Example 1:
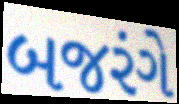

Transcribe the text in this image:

બજરંગે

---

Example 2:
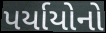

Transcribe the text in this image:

પર્યાયોનો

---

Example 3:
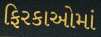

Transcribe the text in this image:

ફિરકાઓમાં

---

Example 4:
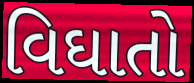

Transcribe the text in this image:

વિઘાતો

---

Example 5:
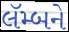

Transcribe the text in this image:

લૅમ્બને